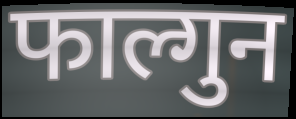
फाल्गुन